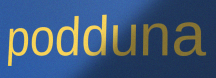
podduna